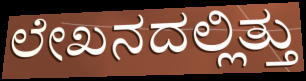
ಲೇಖನದಲ್ಲಿತ್ತು